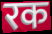
रक